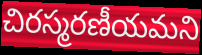
చిరస్మరణీయమని